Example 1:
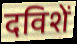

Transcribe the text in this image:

दविशें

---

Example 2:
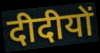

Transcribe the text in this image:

दीदीयों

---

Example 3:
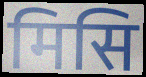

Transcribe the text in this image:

मिसि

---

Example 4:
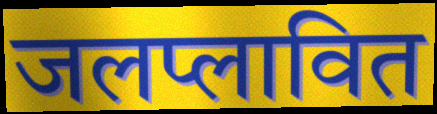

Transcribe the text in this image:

जलप्लावित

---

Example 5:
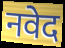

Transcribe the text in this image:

नवेद